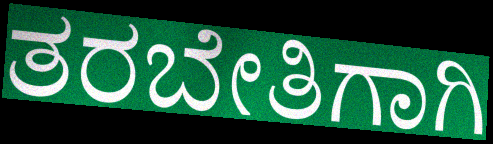
ತರಬೇತಿಗಾಗಿ